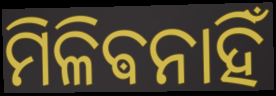
ମିଳିଵନାହିଁ